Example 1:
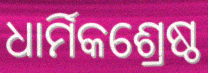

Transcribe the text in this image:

ଧାର୍ମିକଶ୍ରେଷ୍ଠ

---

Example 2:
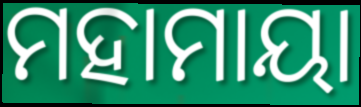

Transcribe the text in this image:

ମହାମାୟା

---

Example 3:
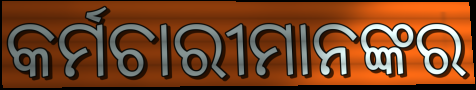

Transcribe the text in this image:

କର୍ମଚାରୀମାନଙ୍କର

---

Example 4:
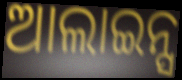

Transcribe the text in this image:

ଆଲାଇନ୍ସ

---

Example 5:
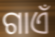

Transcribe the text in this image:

ଗାଏଁ